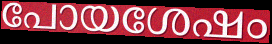
പോയശേഷം